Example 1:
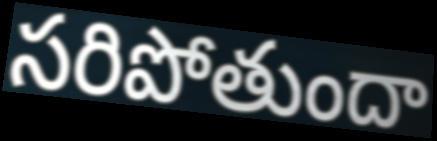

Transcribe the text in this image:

సరిపోతుందా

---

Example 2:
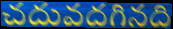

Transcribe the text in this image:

చదువదగినది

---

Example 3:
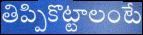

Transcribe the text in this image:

తిప్పికొట్టాలంటే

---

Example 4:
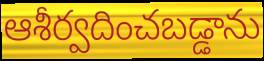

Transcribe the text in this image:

ఆశీర్వదించబడ్డాను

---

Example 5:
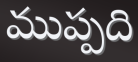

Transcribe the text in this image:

ముప్పది